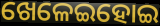
ଖେଳେଇହୋଇ